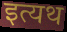
इत्यथ